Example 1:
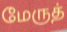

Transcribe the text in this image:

மேருத்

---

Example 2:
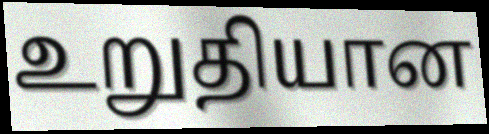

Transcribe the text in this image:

உறுதியான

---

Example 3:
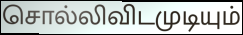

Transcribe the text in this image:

சொல்லிவிடமுடியும்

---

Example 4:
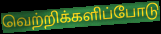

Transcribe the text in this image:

வெற்றிக்களிப்போடு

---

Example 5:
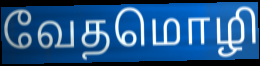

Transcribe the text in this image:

வேதமொழி